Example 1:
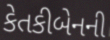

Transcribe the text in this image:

કેતકીબેનની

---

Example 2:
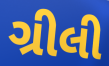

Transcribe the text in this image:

ગ્રીલી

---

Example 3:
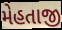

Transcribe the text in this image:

મેહતાજી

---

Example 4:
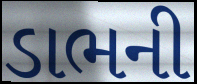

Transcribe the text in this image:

ડાભની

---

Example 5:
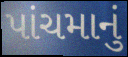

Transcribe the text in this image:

પાંચમાનું